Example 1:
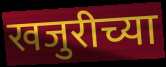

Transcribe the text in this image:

खजुरीच्या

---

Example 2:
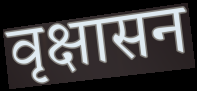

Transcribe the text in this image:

वृक्षासन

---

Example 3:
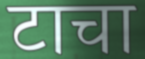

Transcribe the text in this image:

टाचा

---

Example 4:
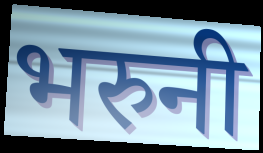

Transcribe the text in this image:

भरुनी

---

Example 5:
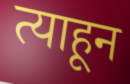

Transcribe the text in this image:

त्याहून